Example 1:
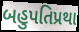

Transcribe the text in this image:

બહુપતિપ્રથા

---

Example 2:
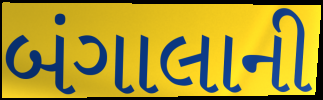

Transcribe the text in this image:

બંગાલાની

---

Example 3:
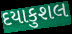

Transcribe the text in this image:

દયાકુશલ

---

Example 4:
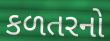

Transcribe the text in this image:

કળતરનો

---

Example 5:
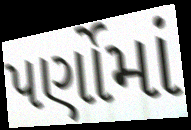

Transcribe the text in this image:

પર્ણોમાં